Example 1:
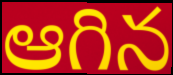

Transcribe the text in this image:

ఆగిన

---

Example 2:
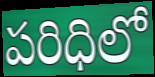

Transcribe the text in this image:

పరిధిలో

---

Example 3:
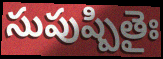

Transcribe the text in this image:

సుపుష్పితైః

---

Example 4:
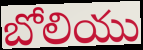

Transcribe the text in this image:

బోలియు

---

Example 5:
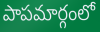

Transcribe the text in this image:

పాపమార్గంలో